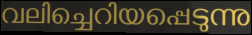
വലിച്ചെറിയപ്പെടുന്നു